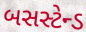
બસસ્ટેન્ડ